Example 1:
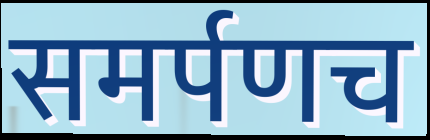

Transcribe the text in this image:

समर्पणच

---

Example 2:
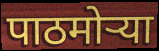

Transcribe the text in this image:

पाठमोऱ्या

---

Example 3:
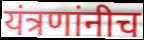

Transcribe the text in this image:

यंत्रणांनीच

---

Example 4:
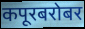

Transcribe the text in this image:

कपूरबरोबर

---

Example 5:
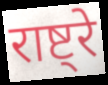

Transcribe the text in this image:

राष्ट्रे